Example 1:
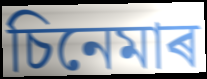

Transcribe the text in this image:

চিনেমাৰ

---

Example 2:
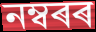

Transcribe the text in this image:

নম্বৰৰ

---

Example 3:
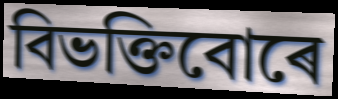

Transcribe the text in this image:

বিভক্তিবোৰে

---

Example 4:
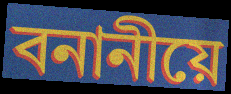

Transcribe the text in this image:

বনানীয়ে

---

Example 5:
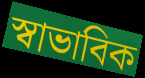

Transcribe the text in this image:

স্বাভাবিক